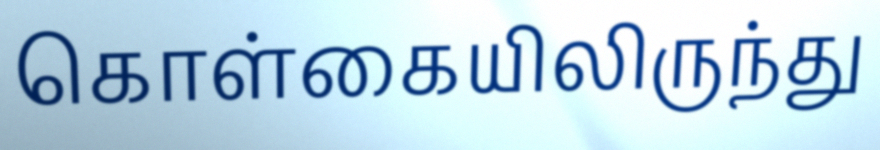
கொள்கையிலிருந்து